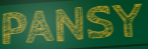
PANSY